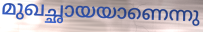
മുഖച്ഛായയാണെന്നു